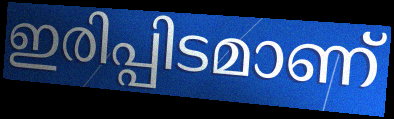
ഇരിപ്പിടമാണ്